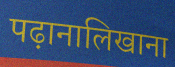
पढ़ानालिखाना